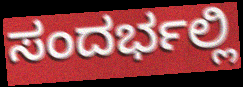
ಸಂದರ್ಭಲ್ಲಿ